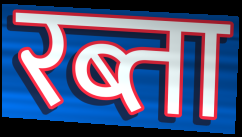
रब्ता